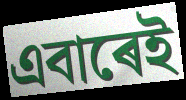
এবাৰেই